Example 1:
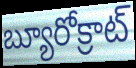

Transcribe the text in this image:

బ్యూరోక్రాట్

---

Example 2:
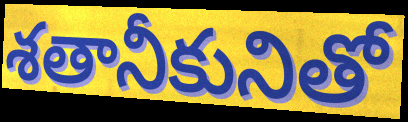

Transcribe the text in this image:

శతానీకునితో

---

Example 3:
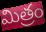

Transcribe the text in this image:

మిత్రం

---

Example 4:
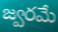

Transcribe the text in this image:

జ్వరమే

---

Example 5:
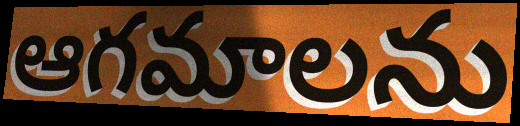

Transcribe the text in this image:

ఆగమాలను